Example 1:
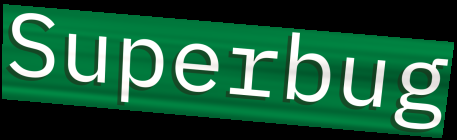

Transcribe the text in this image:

Superbug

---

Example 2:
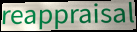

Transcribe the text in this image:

reappraisal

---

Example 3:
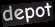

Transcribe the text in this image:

depot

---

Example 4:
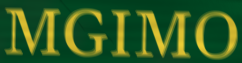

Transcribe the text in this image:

MGIMO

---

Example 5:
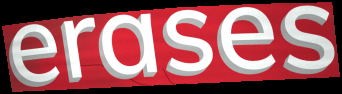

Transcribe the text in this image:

erases